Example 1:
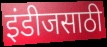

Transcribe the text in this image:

इंडीजसाठी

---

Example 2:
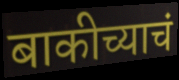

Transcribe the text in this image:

बाकीच्याचं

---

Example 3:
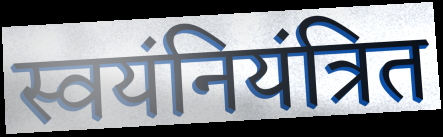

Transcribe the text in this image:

स्वयंनियंत्रित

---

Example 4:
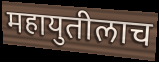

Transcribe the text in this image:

महायुतीलाच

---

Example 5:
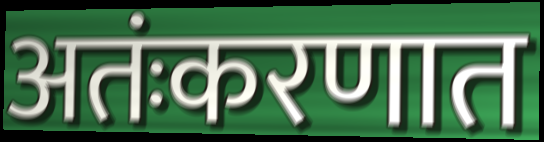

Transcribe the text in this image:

अतंःकरणात